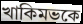
খাকিমভকে